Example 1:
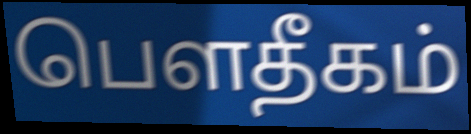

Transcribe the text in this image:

பௌதீகம்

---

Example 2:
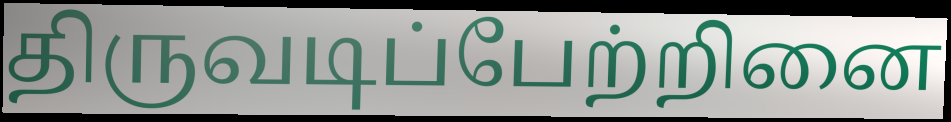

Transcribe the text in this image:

திருவடிப்பேற்றினை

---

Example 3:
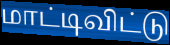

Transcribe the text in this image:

மாட்டிவிட்டு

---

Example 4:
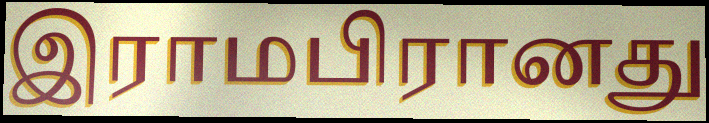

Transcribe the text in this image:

இராமபிரானது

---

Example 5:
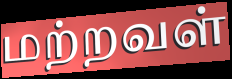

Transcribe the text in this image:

மற்றவள்